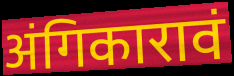
अंगिकारावं